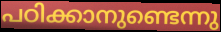
പഠിക്കാനുണ്ടെന്നു